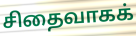
சிதைவாகக்